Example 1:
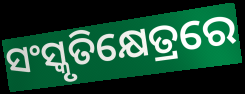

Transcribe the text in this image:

ସଂସ୍କୃତିକ୍ଷେତ୍ରରେ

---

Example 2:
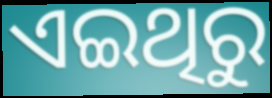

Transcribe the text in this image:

ଏଇଥିରୁ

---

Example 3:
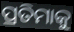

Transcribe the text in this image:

ପ୍ରତିମାକୁ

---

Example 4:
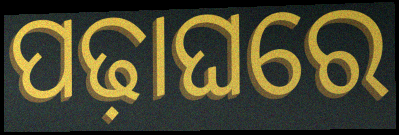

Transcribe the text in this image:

ପଢ଼ାଘରେ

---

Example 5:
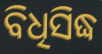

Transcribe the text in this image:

ବିଧିସିଦ୍ଧ